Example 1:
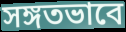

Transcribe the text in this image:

সঙ্গতভাবে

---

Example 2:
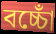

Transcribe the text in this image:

বচ্চোঁ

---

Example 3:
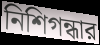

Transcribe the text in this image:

নিশিগন্ধার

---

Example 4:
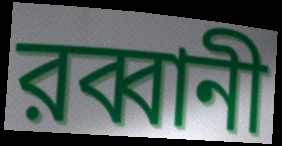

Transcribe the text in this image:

রব্বানী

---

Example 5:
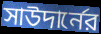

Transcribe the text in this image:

সাউদার্নের